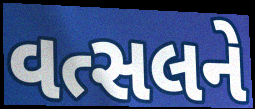
વત્સલને